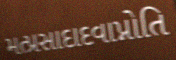
મત્પ્રસાદાદવાપ્નોતિ